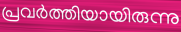
പ്രവർത്തിയായിരുന്നു